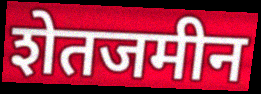
शेतजमीन